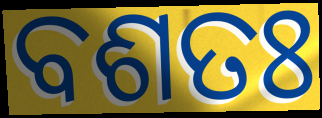
ବଶତଃ